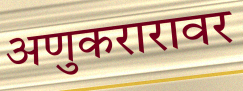
अणुकरारावर